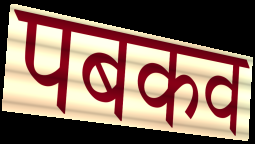
पबकव